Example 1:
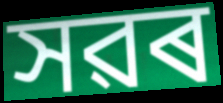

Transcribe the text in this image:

সৱৰ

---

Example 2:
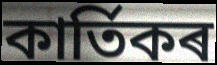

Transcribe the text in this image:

কাৰ্তিকৰ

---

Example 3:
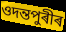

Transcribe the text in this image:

ওদন্তপুৰীৰ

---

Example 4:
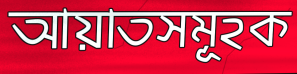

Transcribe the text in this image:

আয়াতসমূহক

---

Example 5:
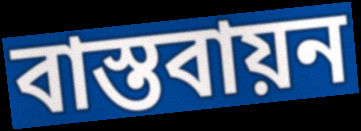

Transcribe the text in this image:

বাস্তবায়ন